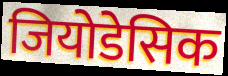
जियोडेसिक